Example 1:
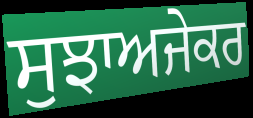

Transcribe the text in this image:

ਸੁਝਾਅਜੇਕਰ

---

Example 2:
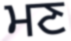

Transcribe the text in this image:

ਮਣ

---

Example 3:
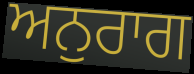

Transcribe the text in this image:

ਅਨੁਰਾਗ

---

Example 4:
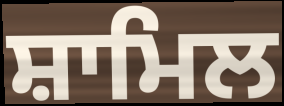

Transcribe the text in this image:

ਸ਼ਾਮਿਲ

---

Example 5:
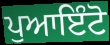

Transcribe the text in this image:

ਪੁਆਇੰਟੋ